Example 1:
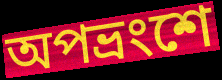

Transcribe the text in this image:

অপভ্রংশে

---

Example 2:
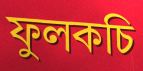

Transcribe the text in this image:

ফুলকচি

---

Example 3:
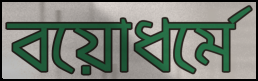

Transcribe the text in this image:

বয়োধর্মে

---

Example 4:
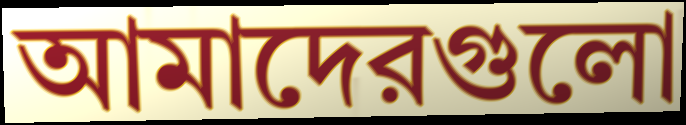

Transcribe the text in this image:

আমাদেরগুলো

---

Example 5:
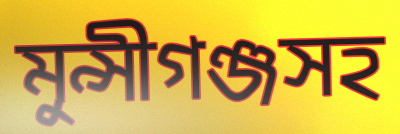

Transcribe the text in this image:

মুন্সীগঞ্জসহ